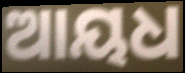
ଆୟଧ